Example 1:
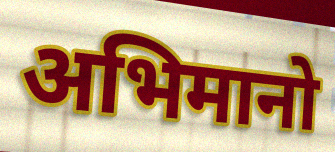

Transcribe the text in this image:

अभिमानो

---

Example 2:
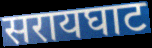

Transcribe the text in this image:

सरायघाट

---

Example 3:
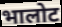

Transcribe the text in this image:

भालोट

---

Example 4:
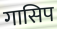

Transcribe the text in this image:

गासिप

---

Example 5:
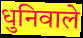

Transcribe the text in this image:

धुनिवाले